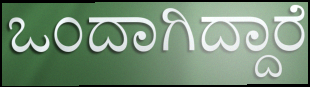
ಒಂದಾಗಿದ್ದಾರೆ